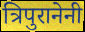
त्रिपुरानेनी